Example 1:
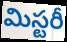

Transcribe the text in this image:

మిస్టరీ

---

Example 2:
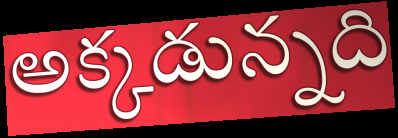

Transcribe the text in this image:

అక్కడున్నది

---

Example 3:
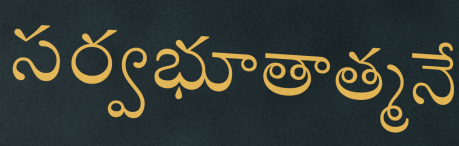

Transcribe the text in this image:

సర్వభూతాత్మనే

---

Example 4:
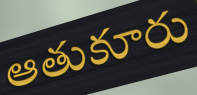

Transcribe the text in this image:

ఆతుకూరు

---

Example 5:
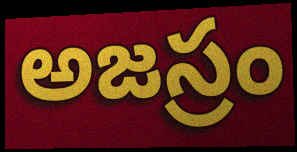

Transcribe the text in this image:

అజస్రం